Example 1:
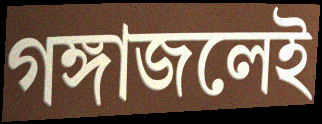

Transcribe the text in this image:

গঙ্গাজলেই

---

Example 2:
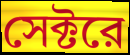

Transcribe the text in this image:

সেক্টরে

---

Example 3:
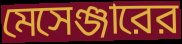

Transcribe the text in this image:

মেসেঞ্জারের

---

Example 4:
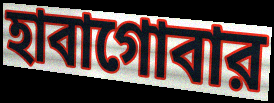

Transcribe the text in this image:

হাবাগোবার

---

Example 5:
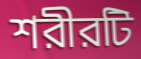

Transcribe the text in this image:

শরীরটি